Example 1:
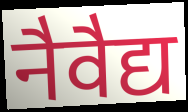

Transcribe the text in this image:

नैवैद्य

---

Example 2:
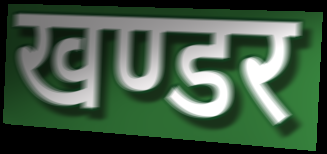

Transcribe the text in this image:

खण्डर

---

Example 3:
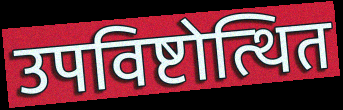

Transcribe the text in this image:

उपविष्टोत्थित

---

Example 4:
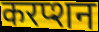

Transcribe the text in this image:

करप्शन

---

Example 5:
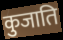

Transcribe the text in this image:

कुजाति